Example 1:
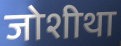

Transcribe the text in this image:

जोशीथा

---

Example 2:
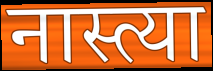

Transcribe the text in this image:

नास्त्या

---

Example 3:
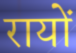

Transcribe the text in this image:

रायों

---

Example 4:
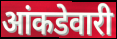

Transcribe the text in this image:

आंकडेवारी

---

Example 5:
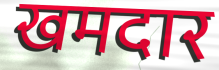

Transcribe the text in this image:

खमदार